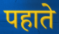
पहाते